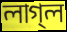
লাগ্‌ল